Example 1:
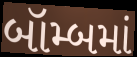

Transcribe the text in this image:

બૉમ્બમાં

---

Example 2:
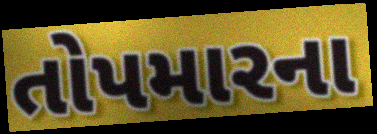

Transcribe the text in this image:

તોપમારના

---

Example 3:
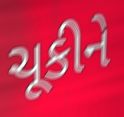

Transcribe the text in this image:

ચૂકીને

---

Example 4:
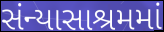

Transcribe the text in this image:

સંન્યાસાશ્રમમાં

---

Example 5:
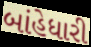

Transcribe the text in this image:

બાંહેધારી